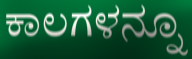
ಕಾಲಗಳನ್ನೂ